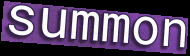
summon